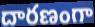
దారణంగా